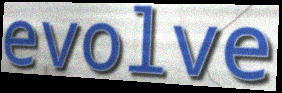
evolve